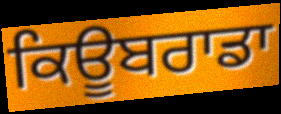
ਕਿਊਬਰਾਡਾ